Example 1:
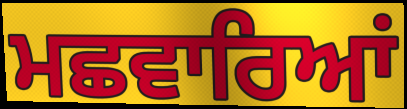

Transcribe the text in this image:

ਮਛਵਾਰਿਆਂ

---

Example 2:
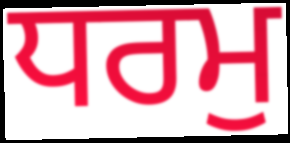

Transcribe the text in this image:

ਧਰਮੁ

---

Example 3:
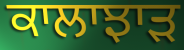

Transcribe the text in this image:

ਕਾਲਾਝਾਡ਼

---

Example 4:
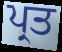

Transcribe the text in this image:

ਪ੍ਰਤ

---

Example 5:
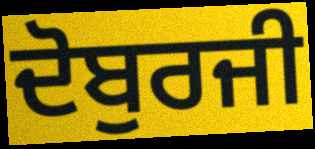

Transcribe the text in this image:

ਦੋਬੁਰਜੀ